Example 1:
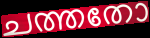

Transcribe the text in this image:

ചത്തതോ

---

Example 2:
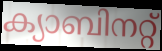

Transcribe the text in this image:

ക്യാബിനറ്റ്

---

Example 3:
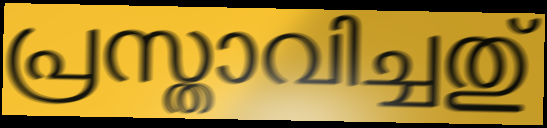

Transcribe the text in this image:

പ്രസ്താവിച്ചതു്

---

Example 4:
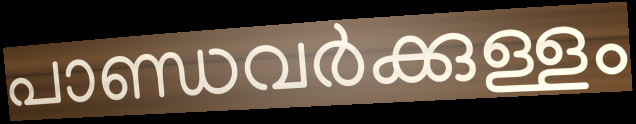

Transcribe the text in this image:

പാണ്ഡവർക്കുള്ളം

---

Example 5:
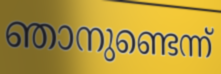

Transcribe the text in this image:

ഞാനുണ്ടെന്ന്